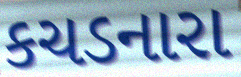
કચડનારા